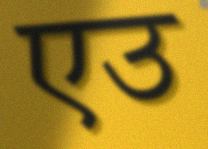
एउ